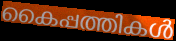
കൈപ്പത്തികൾ